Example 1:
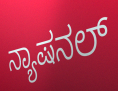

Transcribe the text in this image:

ನ್ಯಾಷನಲ್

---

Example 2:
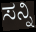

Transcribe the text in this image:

ಸನ್ನಿ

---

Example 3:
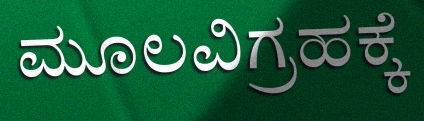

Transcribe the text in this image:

ಮೂಲವಿಗ್ರಹಕ್ಕೆ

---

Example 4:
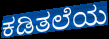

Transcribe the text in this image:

ಕಡಿತಲೆಯ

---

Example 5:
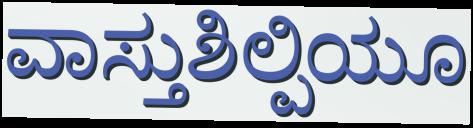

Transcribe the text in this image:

ವಾಸ್ತುಶಿಲ್ಪಿಯೂ